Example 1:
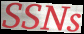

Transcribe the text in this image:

SSNs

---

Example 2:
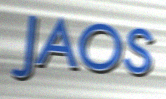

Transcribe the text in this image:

JAOS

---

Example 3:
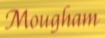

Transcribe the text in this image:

Mougham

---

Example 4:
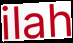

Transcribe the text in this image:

ilah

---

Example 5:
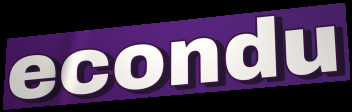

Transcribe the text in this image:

econdu